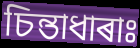
চিন্তাধাৰাঃ